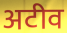
अटीव